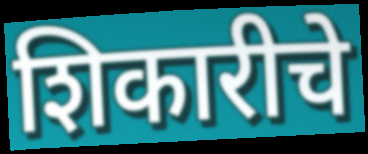
शिकारीचे